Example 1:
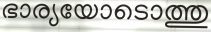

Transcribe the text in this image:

ഭാര്യയോടൊത്തു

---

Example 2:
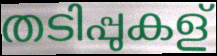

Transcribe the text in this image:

തടിപ്പുകള്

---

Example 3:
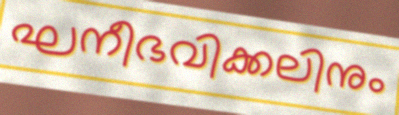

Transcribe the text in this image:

ഘനീഭവിക്കലിനും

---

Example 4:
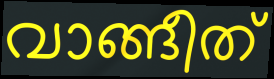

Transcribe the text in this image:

വാങ്ങീത്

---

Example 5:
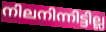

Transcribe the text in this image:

നിലനിന്നിട്ടില്ല